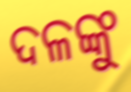
ଦଳଙ୍କୁ